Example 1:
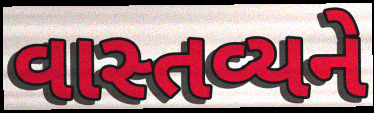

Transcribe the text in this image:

વાસ્તવ્યને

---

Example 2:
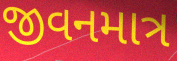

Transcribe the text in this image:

જીવનમાત્ર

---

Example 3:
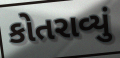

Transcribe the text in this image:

કોતરાવ્યું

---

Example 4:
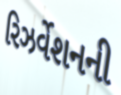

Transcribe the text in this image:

રિઝર્વેશનની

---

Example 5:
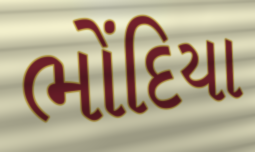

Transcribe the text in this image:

ભોંદિયા